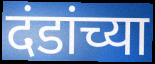
दंडांच्या